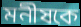
মনীষকে